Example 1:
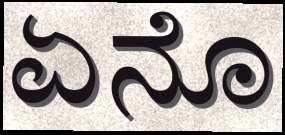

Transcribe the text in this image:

ಏನೊ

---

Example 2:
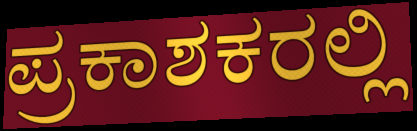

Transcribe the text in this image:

ಪ್ರಕಾಶಕರಲ್ಲಿ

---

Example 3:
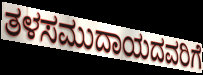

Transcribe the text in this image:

ತಳಸಮುದಾಯದವರಿಗೆ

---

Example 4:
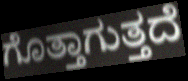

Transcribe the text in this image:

ಗೊತ್ತಾಗುತ್ತದೆ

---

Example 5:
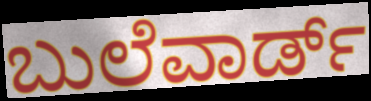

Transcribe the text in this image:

ಬುಲೆವಾರ್ಡ್